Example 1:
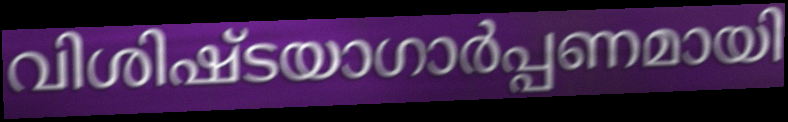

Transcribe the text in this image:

വിശിഷ്ടയാഗാർപ്പണമായി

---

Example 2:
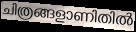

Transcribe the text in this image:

ചിത്രങ്ങളാണിതിൽ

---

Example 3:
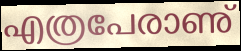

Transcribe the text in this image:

എത്രപേരാണു്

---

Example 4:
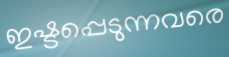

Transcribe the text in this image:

ഇഷ്ടപ്പെടുന്നവരെ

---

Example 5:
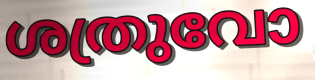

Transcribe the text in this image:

ശത്രുവോ